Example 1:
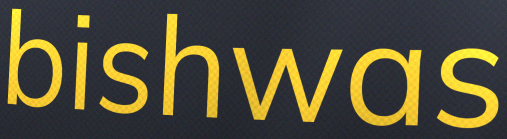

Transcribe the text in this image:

bishwas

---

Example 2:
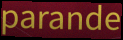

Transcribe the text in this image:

parande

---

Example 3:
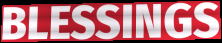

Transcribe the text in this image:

BLESSINGS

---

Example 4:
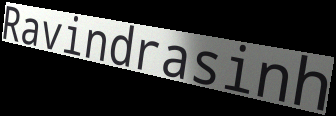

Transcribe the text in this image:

Ravindrasinh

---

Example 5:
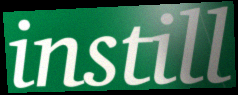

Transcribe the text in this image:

instill